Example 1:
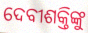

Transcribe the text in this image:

ଦେବୀଶକ୍ତିଙ୍କୁ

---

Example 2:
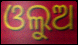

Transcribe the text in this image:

ଓଲୁଅ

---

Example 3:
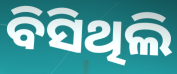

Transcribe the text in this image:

ବିସିଥିଲି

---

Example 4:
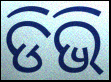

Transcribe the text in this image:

ଡିଭି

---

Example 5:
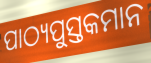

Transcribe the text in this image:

ପାଠ୍ୟପୁସ୍ତକମାନ